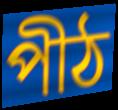
পীঠ